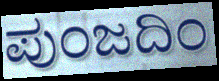
ಪುಂಜದಿಂ